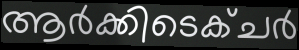
ആർക്കിടെക്ചർ